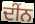
ਦੀਂਨ